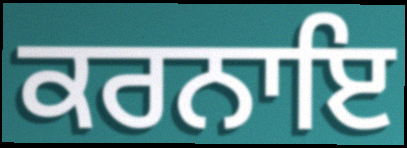
ਕਰਨਾਇ